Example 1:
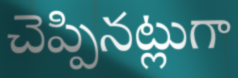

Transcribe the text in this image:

చెప్పినట్లుగా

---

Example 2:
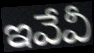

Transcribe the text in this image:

ఇవేవీ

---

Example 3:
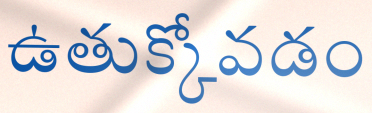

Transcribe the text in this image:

ఉతుక్కోవడం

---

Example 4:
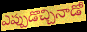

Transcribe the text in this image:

ఎప్పుడొచ్చినాడో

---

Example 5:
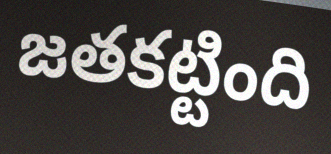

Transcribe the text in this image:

జతకట్టింది